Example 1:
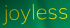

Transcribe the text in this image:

joyless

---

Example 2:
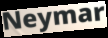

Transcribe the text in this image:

Neymar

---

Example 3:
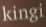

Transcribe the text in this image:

kingi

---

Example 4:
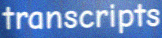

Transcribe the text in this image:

transcripts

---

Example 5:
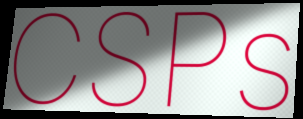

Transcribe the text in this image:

CSPs